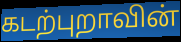
கடற்புறாவின்